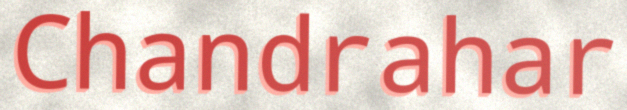
Chandrahar